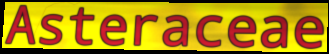
Asteraceae